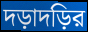
দড়াদড়ির